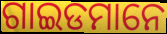
ଗାଇଡମାନେ